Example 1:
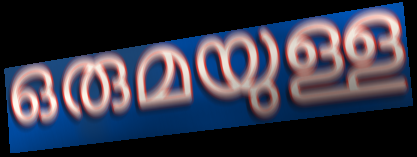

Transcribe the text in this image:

ഒരുമയുള്ള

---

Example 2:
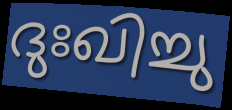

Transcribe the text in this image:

ദുഃഖിച്ചു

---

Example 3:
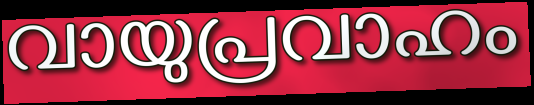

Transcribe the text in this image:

വായുപ്രവാഹം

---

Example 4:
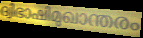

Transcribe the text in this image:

ദ്വിഭാഷിമുഖാന്തരം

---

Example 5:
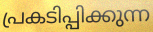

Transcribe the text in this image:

പ്രകടിപ്പിക്കുന്ന